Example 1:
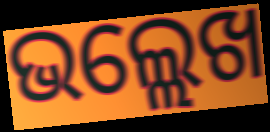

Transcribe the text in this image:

ଭଲ୍ଲେଖ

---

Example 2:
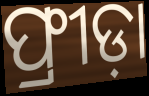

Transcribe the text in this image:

ଫ୍ରୀଡ଼ା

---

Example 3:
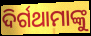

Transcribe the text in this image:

ଦିର୍ଗଥାମାଙ୍କୁ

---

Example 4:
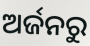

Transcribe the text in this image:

ଅର୍ଜନରୁ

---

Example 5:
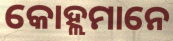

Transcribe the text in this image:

କୋହ୍ଲମାନେ